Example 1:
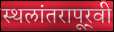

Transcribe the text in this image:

स्थलांतरापूर्वी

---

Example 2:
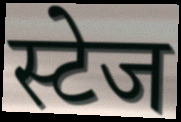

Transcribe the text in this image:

स्टेज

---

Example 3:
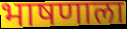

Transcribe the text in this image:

भाषणाला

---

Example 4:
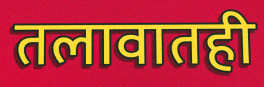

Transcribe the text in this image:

तलावातही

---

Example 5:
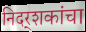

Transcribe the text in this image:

निदर्शकांचा